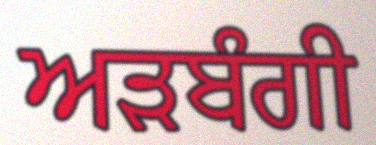
ਅੜਬੰਗੀ